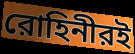
রোহিনীরই